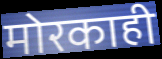
मोरकाही